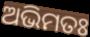
ଅଭିମତଃ